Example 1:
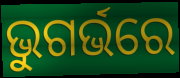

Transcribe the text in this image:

ଭୁଗର୍ଭରେ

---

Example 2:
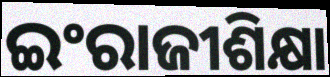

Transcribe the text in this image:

ଇଂରାଜୀଶିକ୍ଷା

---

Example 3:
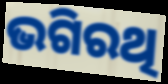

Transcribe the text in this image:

ଭଗିରଥି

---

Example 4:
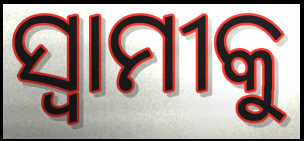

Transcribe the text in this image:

ସ୍ୱାମୀକୁ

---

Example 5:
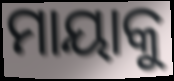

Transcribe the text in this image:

ମାୟାକୁ